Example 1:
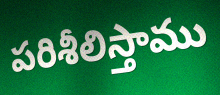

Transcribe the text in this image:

పరిశీలిస్తాము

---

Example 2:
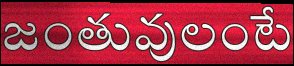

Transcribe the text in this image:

జంతువులంటే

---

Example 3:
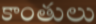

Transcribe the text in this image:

కాంతులు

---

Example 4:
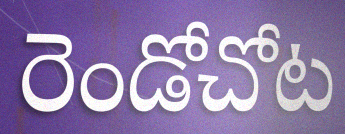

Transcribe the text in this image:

రెండోచోట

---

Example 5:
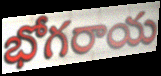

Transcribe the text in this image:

భోగరాయ